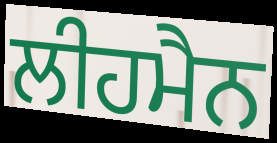
ਲੀਹਮੈਨ